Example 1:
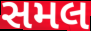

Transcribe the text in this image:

સમલ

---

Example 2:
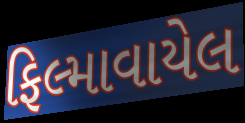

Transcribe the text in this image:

ફિલ્માવાયેલ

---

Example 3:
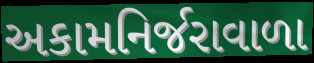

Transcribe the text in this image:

અકામનિર્જરાવાળા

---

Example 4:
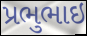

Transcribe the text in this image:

પ્રભુભાઇ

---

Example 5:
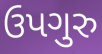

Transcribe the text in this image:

ઉપગુરુ